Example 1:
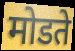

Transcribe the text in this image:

मोडते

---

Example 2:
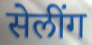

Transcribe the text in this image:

सेलींग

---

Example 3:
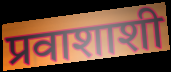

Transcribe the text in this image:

प्रवाशाशी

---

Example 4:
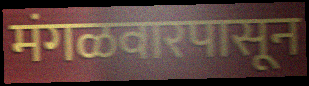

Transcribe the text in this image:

मंगळवारपासून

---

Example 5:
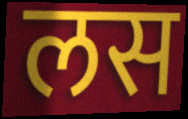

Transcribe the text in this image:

लस